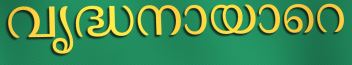
വൃദ്ധനായാറെ